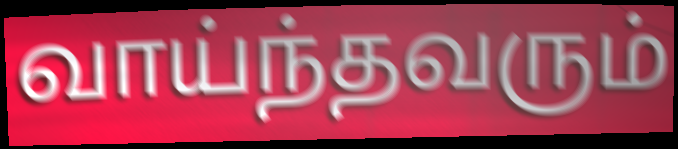
வாய்ந்தவரும்